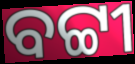
ବଟ୍ଟୀ